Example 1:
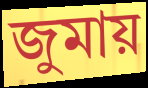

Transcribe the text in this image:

জুমায়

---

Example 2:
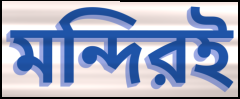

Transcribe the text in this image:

মন্দিরই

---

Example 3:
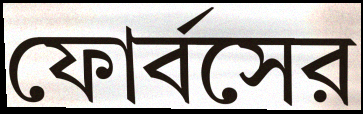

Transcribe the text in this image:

ফোর্বসের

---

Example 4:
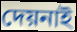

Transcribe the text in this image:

দেয়নাই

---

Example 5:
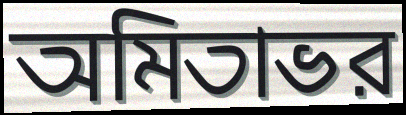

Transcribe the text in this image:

অমিতাভর